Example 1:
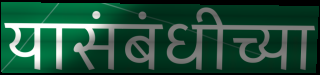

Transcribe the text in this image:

यासंबंधीच्या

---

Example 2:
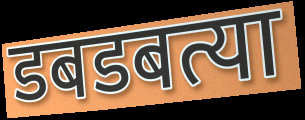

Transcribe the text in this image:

डबडबत्या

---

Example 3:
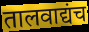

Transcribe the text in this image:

तालवाद्यंच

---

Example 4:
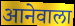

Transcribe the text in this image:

आनेवाला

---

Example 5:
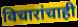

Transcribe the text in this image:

विचारांचाही